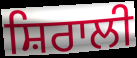
ਸ਼ਿਰਾਲੀ